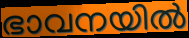
ഭാവനയിൽ